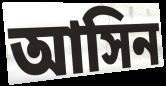
আসিন